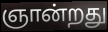
ஞான்றது